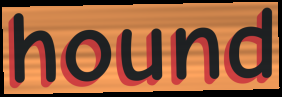
hound